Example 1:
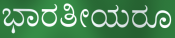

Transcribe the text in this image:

ಭಾರತೀಯರೂ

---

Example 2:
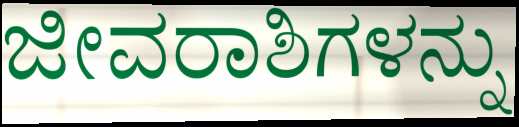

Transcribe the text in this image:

ಜೀವರಾಶಿಗಳನ್ನು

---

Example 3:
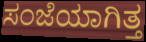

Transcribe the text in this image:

ಸಂಜೆಯಾಗಿತ್ತ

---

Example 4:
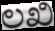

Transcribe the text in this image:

ಲಖಿ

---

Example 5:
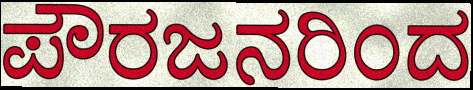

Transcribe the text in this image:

ಪೌರಜನರಿಂದ